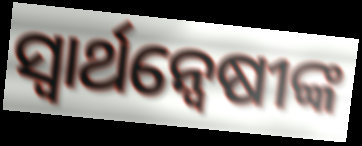
ସ୍ୱାର୍ଥନ୍ୱେଷୀଙ୍କ